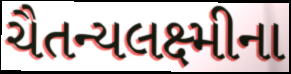
ચૈતન્યલક્ષ્મીના